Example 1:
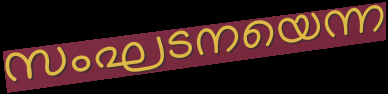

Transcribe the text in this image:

സംഘടനയെന്ന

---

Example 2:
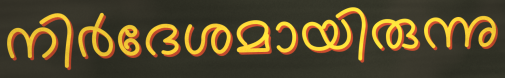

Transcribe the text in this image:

നിർദേശമായിരുന്നു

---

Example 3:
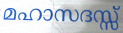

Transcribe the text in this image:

മഹാസദസ്സ്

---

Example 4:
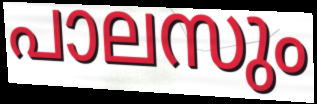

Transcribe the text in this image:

പാലസും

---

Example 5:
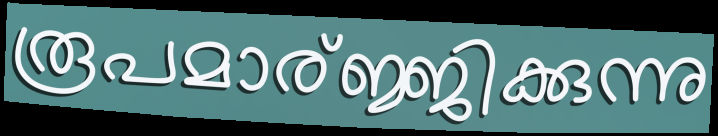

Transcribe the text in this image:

രൂപമാര്ജ്ജിക്കുന്നു